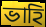
ভাহি